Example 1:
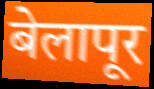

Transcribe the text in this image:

बेलापूर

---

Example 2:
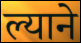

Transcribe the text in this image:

ल्याने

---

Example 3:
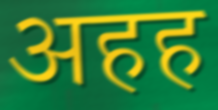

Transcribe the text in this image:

अहह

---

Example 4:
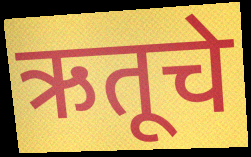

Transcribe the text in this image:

ऋतूचे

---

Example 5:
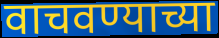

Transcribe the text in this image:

वाचवण्याच्या